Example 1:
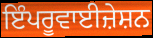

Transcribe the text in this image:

ਇੰਪਰੂਵਾਈਜ਼ੇਸ਼ਨ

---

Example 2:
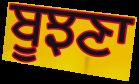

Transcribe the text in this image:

ਬੂਝਣਾ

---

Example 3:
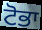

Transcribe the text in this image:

ਟੋਭਾ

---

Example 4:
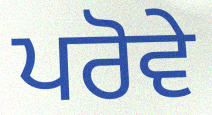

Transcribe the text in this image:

ਪਰੋਵੇ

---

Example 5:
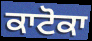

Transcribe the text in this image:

ਕਾਟੋਕਾ